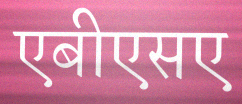
एबीएसए